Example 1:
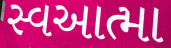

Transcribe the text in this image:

સ્વઆત્મા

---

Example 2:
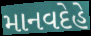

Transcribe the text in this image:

માનવદેહે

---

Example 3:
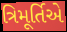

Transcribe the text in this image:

ત્રિમૂર્તિએ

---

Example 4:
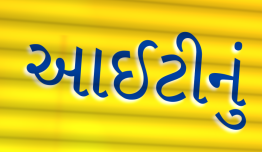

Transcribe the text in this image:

આઈટીનું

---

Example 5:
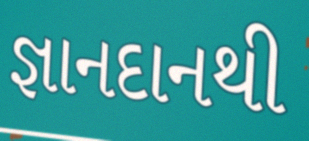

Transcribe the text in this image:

જ્ઞાનદાનથી